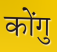
कोंगु